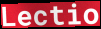
Lectio